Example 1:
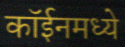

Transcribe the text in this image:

कॉईनमध्ये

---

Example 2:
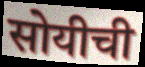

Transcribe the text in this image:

सोयीची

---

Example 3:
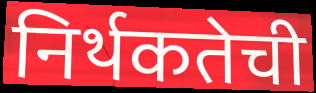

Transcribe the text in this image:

निर्थकतेची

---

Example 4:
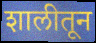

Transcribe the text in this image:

शालीतून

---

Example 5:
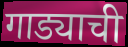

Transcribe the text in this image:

गाड्याची